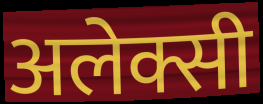
अलेक्सी